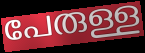
പേരുള്ള